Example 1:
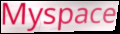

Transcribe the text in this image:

Myspace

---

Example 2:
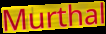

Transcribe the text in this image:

Murthal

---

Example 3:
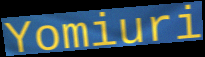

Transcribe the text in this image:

Yomiuri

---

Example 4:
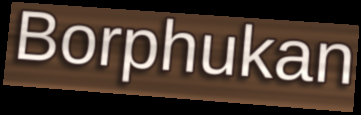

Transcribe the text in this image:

Borphukan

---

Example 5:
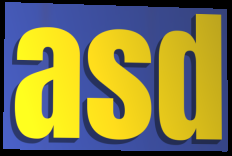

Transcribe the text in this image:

asd